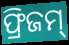
ଫ୍ରିଜମ୍